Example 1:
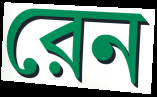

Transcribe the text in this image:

রেন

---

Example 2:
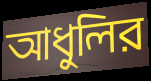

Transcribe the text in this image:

আধুলির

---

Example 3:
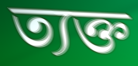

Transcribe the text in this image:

ত্যক্ত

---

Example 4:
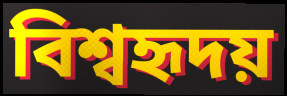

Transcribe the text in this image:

বিশ্বহৃদয়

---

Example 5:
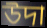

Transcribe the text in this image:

উদা